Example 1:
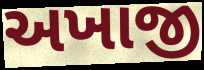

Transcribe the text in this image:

અખાજી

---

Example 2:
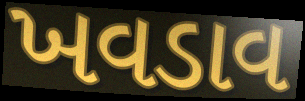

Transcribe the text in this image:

ખવડાવ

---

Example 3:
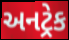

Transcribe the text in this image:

અનટ્રેક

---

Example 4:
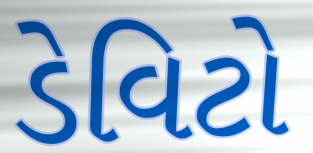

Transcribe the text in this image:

ડેવિટો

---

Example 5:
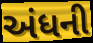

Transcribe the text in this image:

અંધની